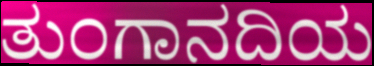
ತುಂಗಾನದಿಯ